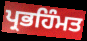
ਪ੍ਰਭਹਿੰਮਤ